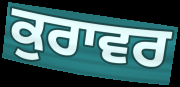
ਕੁਰਾਵਰ